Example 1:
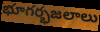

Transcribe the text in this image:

భూగర్భజలాలు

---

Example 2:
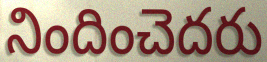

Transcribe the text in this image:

నిందించెదరు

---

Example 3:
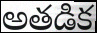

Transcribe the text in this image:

అతడిక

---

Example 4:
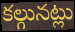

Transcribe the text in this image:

కల్గునట్లు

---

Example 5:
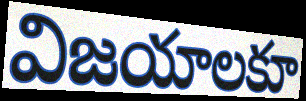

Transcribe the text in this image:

విజయాలకూ